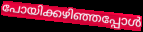
പോയിക്കഴിഞ്ഞപ്പോൾ